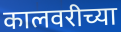
कालवरीच्या